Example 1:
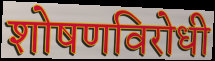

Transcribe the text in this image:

शोषणविरोधी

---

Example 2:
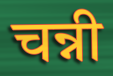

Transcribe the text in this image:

चन्नी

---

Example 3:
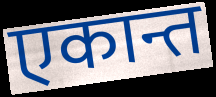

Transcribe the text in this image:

एकान्त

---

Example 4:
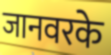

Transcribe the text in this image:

जानवरके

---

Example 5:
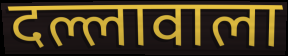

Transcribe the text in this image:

दल्लावाला